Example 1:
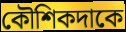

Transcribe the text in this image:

কৌশিকদাকে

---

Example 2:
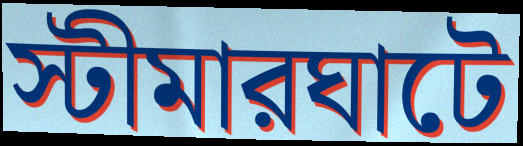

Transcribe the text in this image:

স্টীমারঘাটে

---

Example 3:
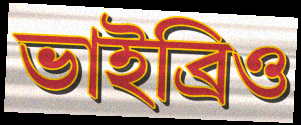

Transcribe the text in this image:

ভাইব্রিও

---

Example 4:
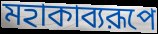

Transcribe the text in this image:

মহাকাব্যরূপে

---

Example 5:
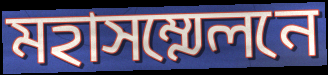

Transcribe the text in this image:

মহাসম্মেলনে